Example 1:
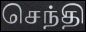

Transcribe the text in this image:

செந்தி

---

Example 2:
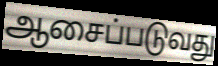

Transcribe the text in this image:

ஆசைப்படுவது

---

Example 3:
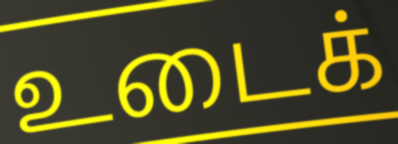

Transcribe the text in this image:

உடைக்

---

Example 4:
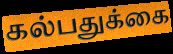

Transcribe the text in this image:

கல்பதுக்கை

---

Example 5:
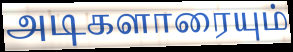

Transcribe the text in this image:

அடிகளாரையும்